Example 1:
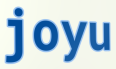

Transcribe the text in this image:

joyu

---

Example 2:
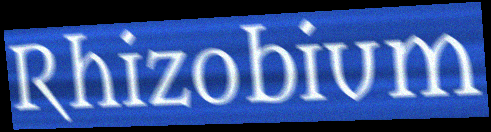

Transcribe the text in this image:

Rhizobium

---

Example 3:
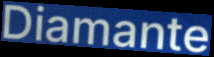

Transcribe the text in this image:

Diamante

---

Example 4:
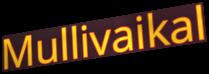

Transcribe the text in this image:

Mullivaikal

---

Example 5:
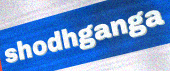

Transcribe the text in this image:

shodhganga